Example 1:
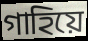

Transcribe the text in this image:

গাহিয়ে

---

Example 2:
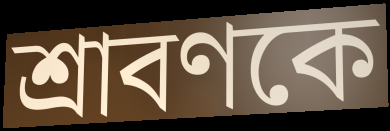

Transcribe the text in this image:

শ্রাবণকে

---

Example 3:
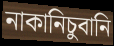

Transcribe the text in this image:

নাকানিচুবানি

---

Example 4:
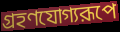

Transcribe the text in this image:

গ্রহণযোগ্যরূপে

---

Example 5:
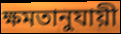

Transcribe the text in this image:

ক্ষমতানুযায়ী